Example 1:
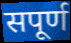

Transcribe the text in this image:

सपूर्ण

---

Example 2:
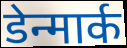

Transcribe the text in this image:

डेन्मार्क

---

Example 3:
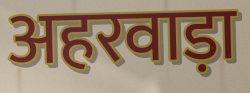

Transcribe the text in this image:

अहरवाड़ा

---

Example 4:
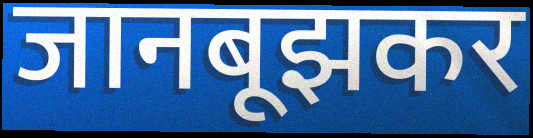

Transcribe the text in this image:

जानबूझकर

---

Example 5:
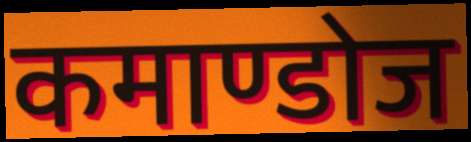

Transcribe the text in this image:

कमाण्डोज